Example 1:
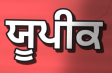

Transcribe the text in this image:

ਯੂਪੀਕ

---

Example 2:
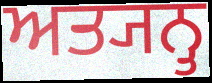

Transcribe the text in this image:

ਅਤ੍ਯਨ੍ਤ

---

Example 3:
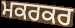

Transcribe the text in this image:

ਮਕਰਕਰ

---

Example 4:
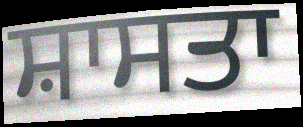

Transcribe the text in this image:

ਸ਼ਾਸਤਾ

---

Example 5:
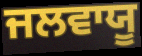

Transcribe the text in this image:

ਜਲਵਾਯੂ